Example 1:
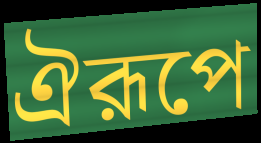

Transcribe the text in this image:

ঐরূপে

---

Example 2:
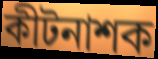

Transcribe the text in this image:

কীটনাশক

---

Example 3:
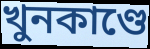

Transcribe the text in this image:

খুনকাণ্ডে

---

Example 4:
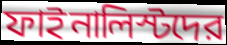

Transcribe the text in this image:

ফাইনালিস্টদের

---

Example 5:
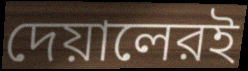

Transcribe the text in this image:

দেয়ালেরই